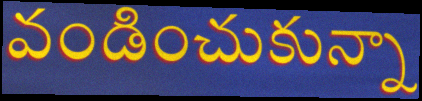
వండించుకున్నా